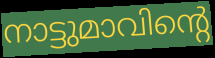
നാട്ടുമാവിന്റെ